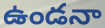
ఉండనా